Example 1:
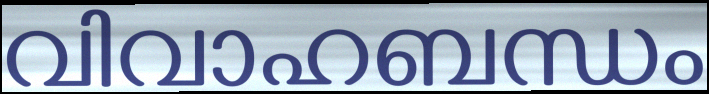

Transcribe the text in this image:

വിവാഹബന്ധം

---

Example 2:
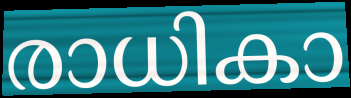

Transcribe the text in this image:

രാധികാ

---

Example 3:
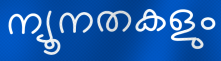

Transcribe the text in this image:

ന്യൂനതകളും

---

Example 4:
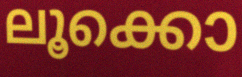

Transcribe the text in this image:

ലൂക്കൊ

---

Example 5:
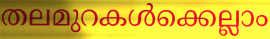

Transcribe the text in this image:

തലമുറകൾക്കെല്ലാം